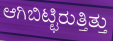
ಆಗಿಬಿಟ್ಟಿರುತ್ತಿತ್ತು